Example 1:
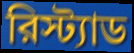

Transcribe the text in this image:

রিস্ট্যাড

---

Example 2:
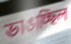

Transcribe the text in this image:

ভাঙাচ্ছিল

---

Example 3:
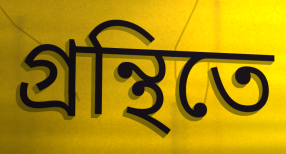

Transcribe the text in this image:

গ্রন্থিতে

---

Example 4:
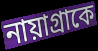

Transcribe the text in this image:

নায়াগ্রাকে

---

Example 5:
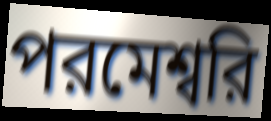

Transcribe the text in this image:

পরমেশ্বরি